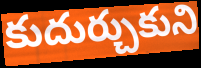
కుదుర్చుకుని